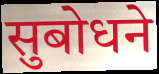
सुबोधने